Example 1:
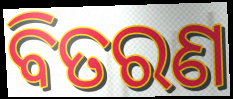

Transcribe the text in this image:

ବିତରଣ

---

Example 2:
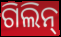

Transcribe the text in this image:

ଗିଲିନ୍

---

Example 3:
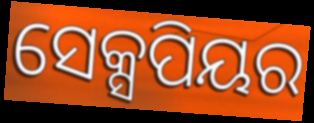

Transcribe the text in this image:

ସେକ୍ସପିୟର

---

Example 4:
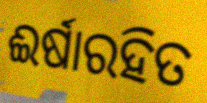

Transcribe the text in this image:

ଈର୍ଷାରହିତ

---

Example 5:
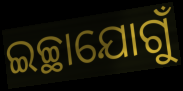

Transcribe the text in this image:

ଇଚ୍ଛାଯୋଗୁଁ